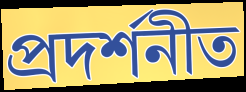
প্ৰদৰ্শনীত